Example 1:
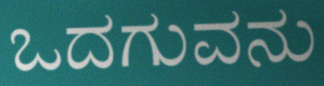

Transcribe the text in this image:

ಒದಗುವನು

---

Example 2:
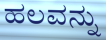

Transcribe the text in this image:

ಹಲವನ್ನು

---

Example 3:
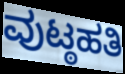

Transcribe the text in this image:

ವುಟ್ಠಹತಿ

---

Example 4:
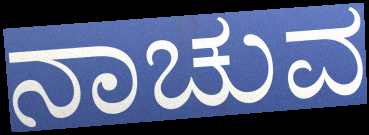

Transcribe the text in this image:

ನಾಚುವ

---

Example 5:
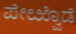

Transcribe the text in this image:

ಪೇೞ್ವೊಡೆ